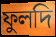
ফুলদি